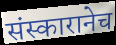
संस्कारानेच